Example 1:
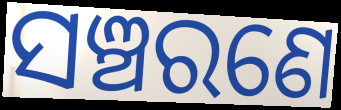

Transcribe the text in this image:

ସଞ୍ଚରଣେ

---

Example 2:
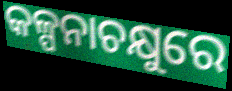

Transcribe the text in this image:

କଳ୍ପନାଚକ୍ଷୁରେ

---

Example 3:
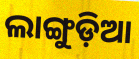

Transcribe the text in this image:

ଲାଙ୍ଗୁଡ଼ିଆ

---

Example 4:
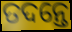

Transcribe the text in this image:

ତଦନ୍ତେ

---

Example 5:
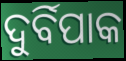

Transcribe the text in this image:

ଦୁର୍ବିପାକ